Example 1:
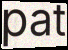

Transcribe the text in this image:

pat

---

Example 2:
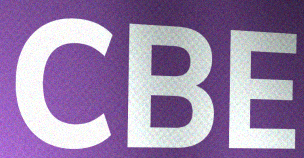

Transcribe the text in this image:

CBE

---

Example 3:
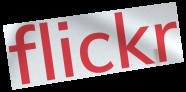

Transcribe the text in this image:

flickr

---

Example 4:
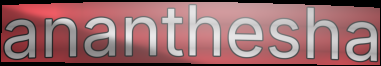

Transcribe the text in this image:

ananthesha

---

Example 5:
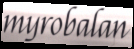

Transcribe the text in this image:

myrobalan